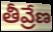
తీవ్రేణ